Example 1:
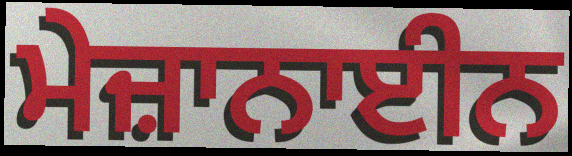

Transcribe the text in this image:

ਮੇਜ਼ਾਨਾਈਨ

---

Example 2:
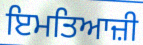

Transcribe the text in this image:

ਇਮਤਿਆਜ਼ੀ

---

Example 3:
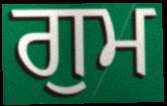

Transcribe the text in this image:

ਗੁਮ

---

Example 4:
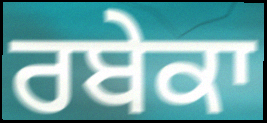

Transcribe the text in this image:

ਰਬੇਕਾ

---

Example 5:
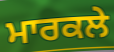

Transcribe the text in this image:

ਮਾਰਕਲੇ